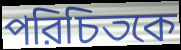
পরিচিতকে